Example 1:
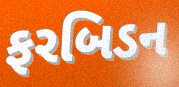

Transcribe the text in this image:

ફરબિડન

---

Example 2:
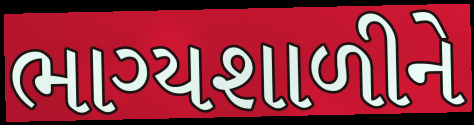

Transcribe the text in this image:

ભાગ્યશાળીને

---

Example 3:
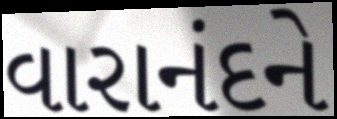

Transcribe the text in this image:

વારાનંદને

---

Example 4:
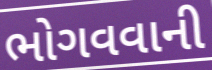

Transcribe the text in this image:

ભોગવવાની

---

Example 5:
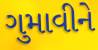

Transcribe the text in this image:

ગુમાવીને